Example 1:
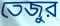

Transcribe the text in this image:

তেজুর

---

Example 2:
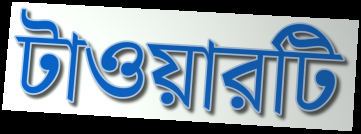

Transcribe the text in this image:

টাওয়ারটি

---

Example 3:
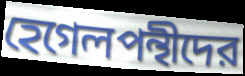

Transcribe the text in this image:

হেগেলপন্থীদের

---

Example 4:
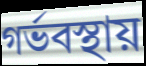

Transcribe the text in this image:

গর্ভবস্থায়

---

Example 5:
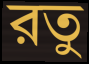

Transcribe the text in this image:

রতু